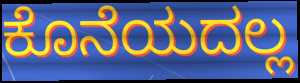
ಕೊನೆಯದಲ್ಲ